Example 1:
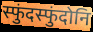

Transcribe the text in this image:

स्फुंदस्फुंदोनि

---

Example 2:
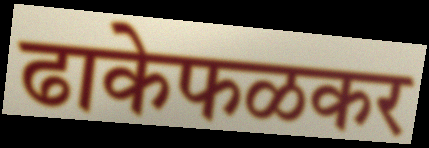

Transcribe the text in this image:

ढाकेफळकर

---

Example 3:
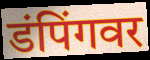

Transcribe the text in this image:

डंपिंगवर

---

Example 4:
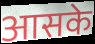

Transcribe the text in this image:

आसके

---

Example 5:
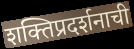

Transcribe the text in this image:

शक्तिप्रदर्शनाची